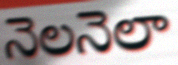
నెలనెలా